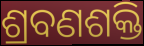
ଶ୍ରବଣଶକ୍ତି